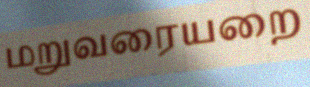
மறுவரையறை